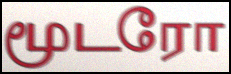
மூடரோ